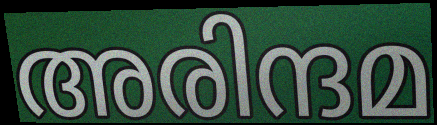
അരിന്ദമ